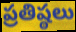
ప్రతిష్ఠలు